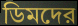
ডিমদের